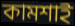
কামশাই